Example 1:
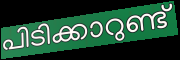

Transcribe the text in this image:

പിടിക്കാറുണ്ട്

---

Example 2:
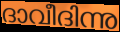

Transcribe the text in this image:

ദാവീദിന്നു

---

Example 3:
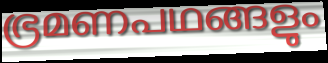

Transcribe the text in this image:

ഭ്രമണപഥങ്ങളും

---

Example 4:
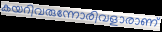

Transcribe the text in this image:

കയറിവരുന്നോരിവളാരാണ്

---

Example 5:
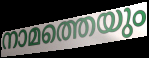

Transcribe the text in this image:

നാമത്തെയും